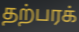
தற்பரக்